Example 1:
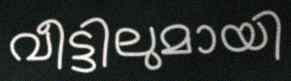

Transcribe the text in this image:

വീട്ടിലുമായി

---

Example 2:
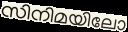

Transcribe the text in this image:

സിനിമയിലോ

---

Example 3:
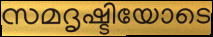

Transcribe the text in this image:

സമദൃഷ്ടിയോടെ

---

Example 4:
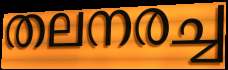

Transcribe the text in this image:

തലനരച്ച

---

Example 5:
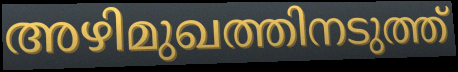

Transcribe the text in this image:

അഴിമുഖത്തിനടുത്ത്